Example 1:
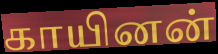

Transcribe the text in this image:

காயினன்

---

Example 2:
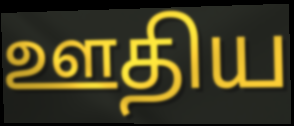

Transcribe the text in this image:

ஊதிய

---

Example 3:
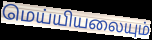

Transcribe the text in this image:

மெய்யியலையும்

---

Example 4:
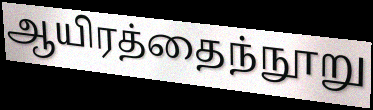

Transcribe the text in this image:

ஆயிரத்தைந்நூறு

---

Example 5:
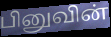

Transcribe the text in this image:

பினுவின்